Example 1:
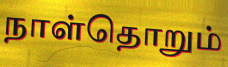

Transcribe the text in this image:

நாள்தொறும்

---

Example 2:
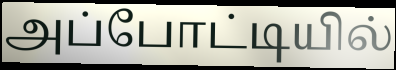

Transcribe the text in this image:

அப்போட்டியில்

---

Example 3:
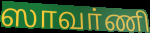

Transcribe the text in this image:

ஸாவர்ணி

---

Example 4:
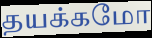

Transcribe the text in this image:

தயக்கமோ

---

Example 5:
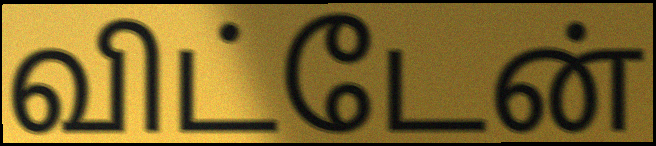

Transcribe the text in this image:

விட்டேன்